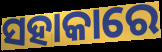
ସହାକାରେ